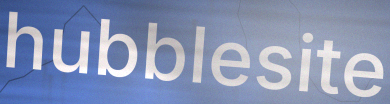
hubblesite